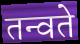
तन्वते